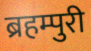
ब्रहम्पुरी